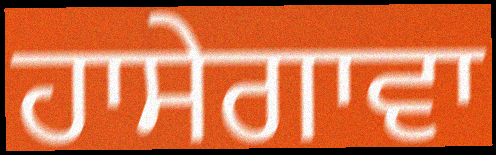
ਹਾਸੇਗਾਵਾ